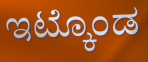
ಇಟ್ಕೊಂಡ